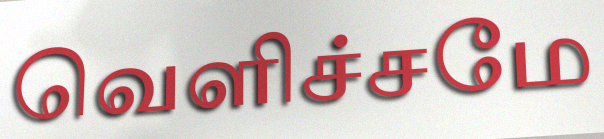
வெளிச்சமே